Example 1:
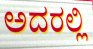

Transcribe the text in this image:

ಅದರಲ್ಲಿ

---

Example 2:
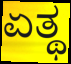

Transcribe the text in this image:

ಏತ್ಥ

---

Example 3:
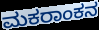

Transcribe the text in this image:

ಮಕರಾಂಕನ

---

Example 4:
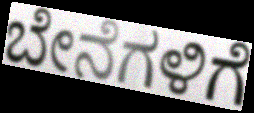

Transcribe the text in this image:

ಬೇನೆಗಳಿಗೆ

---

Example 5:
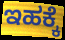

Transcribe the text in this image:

ಇಹಕ್ಕೆ